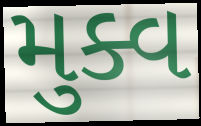
મુક્વ